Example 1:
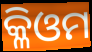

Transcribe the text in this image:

କ୍ଳିଓମ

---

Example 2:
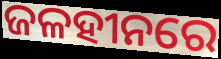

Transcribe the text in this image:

ଜଳହୀନରେ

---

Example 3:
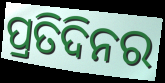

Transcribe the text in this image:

ପ୍ରତିଦିନର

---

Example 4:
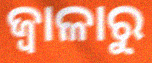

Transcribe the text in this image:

ଜ୍ଵାଳାରୁ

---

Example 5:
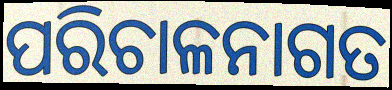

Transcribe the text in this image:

ପରିଚାଳନାଗତ